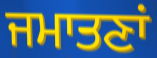
ਜਮਾਤਣਾਂ